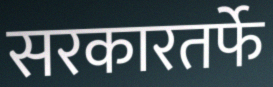
सरकारतर्फे